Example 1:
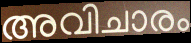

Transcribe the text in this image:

അവിചാരം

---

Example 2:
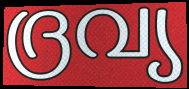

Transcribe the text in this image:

ദ്രവ്യ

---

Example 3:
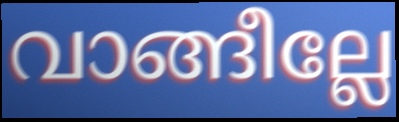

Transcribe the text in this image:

വാങ്ങീല്ലേ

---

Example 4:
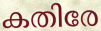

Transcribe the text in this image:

കതിരേ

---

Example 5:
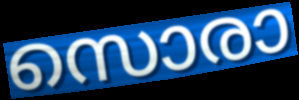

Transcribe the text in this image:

സൊരാ